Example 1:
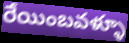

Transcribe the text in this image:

రేయింబవళ్ళూ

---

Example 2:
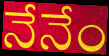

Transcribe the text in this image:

నేనేం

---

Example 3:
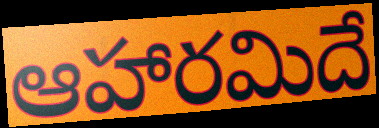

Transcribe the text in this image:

ఆహారమిదే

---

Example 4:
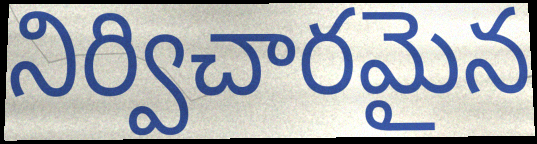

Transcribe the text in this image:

నిర్విచారమైన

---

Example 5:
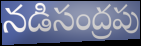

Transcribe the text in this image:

నడిసంద్రపు